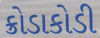
ક્રોડાકોડી